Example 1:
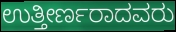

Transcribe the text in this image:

ಉತ್ತೀರ್ಣರಾದವರು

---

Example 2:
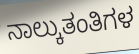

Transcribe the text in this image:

ನಾಲ್ಕುತಂತಿಗಳ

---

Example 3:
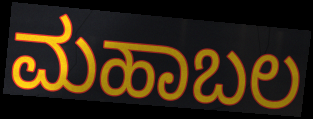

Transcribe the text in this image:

ಮಹಾಬಲ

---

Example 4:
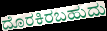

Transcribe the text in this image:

ದೊರಕಿರಬಹುದು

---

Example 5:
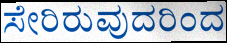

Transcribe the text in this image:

ಸೇರಿರುವುದರಿಂದ